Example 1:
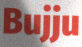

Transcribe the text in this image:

Bujju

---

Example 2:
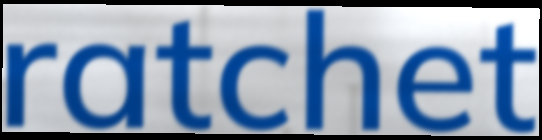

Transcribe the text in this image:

ratchet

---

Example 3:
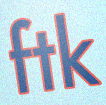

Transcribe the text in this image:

ftk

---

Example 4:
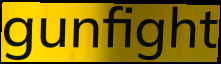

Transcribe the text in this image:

gunfight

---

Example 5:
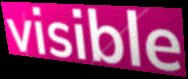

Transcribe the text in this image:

visible